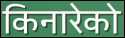
किनारेको